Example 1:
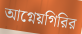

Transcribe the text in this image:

আগ্নেয়গিরির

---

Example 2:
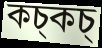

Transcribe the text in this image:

কচ্কচ্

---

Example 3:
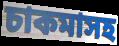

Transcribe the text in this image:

চাকমাসহ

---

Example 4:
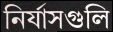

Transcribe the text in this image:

নির্যাসগুলি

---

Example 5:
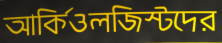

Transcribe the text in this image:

আর্কিওলজিস্টদের